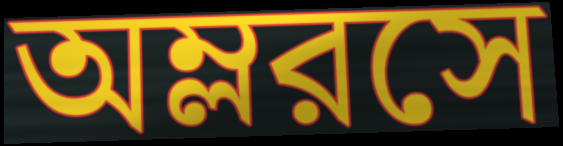
অম্লরসে